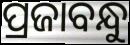
ପ୍ରଜାବନ୍ଧୁ